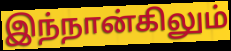
இந்நான்கிலும்